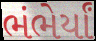
ભંભેર્યાં